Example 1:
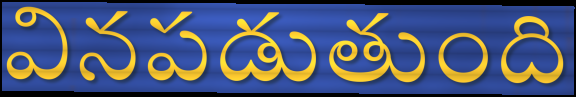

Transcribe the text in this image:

వినపడుతుంది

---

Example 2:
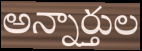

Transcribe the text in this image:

అన్నార్తుల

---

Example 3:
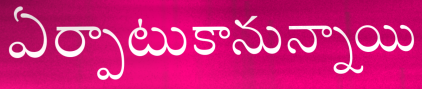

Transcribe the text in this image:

ఏర్పాటుకానున్నాయి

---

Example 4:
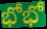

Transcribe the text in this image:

భోభో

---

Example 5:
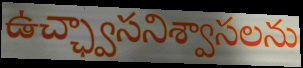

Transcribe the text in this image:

ఉచ్ఛ్వాసనిశ్వాసలను